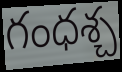
గంధశ్చ